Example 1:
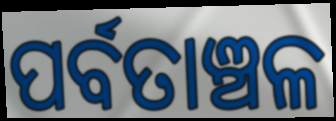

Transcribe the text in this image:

ପର୍ବତାଞ୍ଚଳ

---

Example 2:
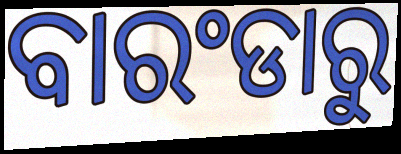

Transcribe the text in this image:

ବାରଂଡାରୁ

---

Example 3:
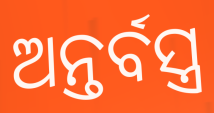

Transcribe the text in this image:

ଅନ୍ତର୍ବସ୍ତ୍ର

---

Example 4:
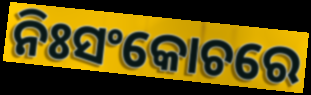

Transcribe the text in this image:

ନିଃସଂକୋଚରେ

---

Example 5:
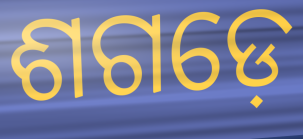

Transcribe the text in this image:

ଶଗଡ଼େ